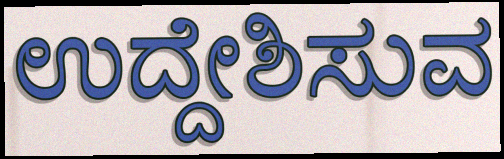
ಉದ್ದೇಶಿಸುವ